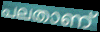
പലതാണ്